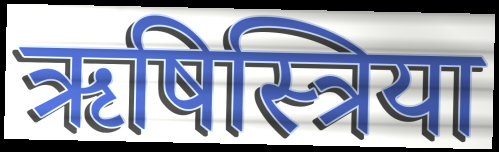
ऋषिस्त्रिया